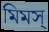
মিমস্